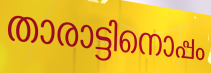
താരാട്ടിനൊപ്പം